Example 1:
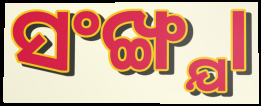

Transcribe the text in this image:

ସଂଙ୍ଖ୍ଯା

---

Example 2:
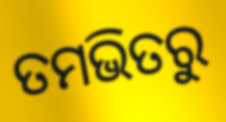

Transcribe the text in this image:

ତମଭିତରୁ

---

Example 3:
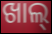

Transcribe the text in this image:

ଖାଲ୍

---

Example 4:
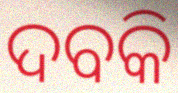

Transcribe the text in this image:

ଦବକି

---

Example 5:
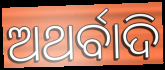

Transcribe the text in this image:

ଅଥର୍ବାଦି